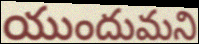
యుందుమని